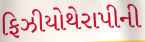
ફિઝીયોથેરાપીની